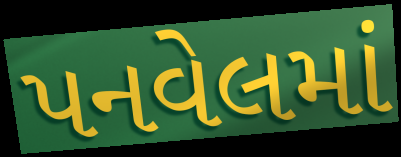
પનવેલમાં